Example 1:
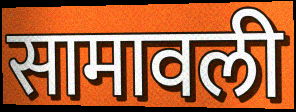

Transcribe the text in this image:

सामावली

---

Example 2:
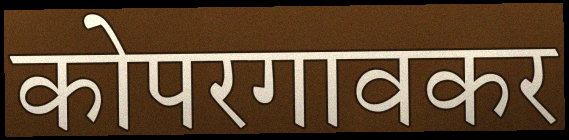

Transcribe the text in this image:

कोपरगावकर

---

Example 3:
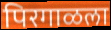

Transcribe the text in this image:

पिरगाळला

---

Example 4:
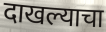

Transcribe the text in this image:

दाखल्याचा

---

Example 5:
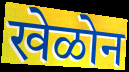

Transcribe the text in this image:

खेळोन